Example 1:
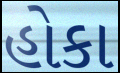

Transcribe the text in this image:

હોકા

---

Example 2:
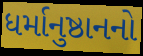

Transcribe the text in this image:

ધર્માનુષ્ઠાનનો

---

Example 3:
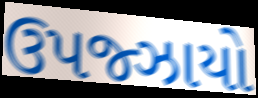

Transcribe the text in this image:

ઉપજ્ઝાયો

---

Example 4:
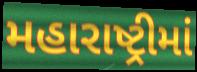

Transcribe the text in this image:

મહારાષ્ટ્રીમાં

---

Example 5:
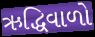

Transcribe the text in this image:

ઋદ્ધિવાળો